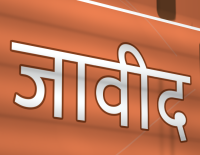
जावीद